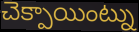
చెక్పాయింట్ను